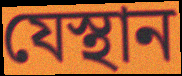
যেস্থান